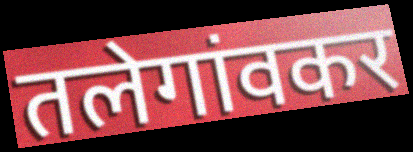
तलेगांवकर